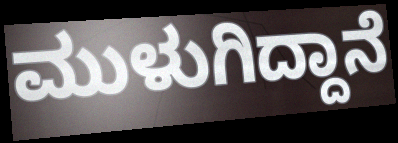
ಮುಳುಗಿದ್ದಾನೆ